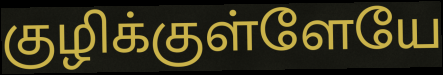
குழிக்குள்ளேயே